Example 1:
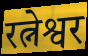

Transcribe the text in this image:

रत्नेश्वर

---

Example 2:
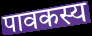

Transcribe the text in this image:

पावकस्य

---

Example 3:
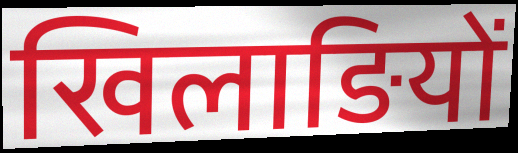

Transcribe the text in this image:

खिलाङियों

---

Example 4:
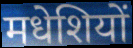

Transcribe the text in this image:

मधेशियों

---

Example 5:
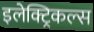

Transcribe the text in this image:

इलेक्ट्रिकल्‍स